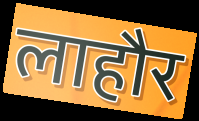
लाहौर